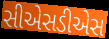
સીએસડીએસ